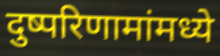
दुष्परिणामांमध्ये